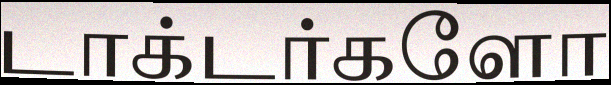
டாக்டர்களோ